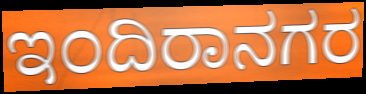
ಇಂದಿರಾನಗರ